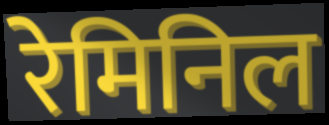
रेमिनिल